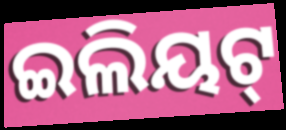
ଇଲିୟଟ୍